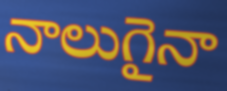
నాలుగైనా